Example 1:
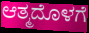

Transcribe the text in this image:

ಆತ್ಮದೊಳಗೆ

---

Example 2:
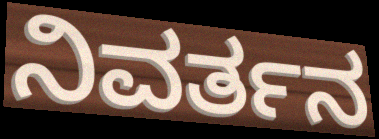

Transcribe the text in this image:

ನಿವರ್ತನ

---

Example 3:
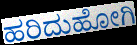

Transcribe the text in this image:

ಹರಿದುಹೋಗಿ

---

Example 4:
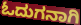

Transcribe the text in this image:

ಓದುಗನಾಗಿ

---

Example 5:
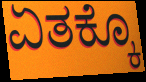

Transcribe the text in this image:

ಏತಕ್ಕೊ